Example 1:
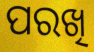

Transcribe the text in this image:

ପରଖି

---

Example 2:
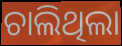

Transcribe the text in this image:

ଚାଲିଥିଲା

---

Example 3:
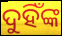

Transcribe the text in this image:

ଦୁହିଁଙ୍କ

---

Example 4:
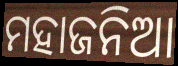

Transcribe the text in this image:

ମହାଜନିଆ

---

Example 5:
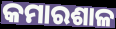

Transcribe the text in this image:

କମାରଶାଳ